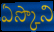
ఏస్కొని